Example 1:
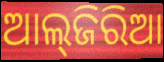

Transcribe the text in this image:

ଆଲ୍‌ଜିରିଆ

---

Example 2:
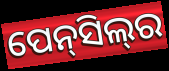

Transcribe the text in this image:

ପେନ୍‍ସିଲ୍‍ର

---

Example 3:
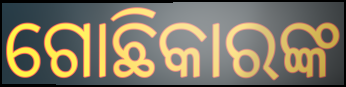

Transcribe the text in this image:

ଗୋଛିକାରଙ୍କ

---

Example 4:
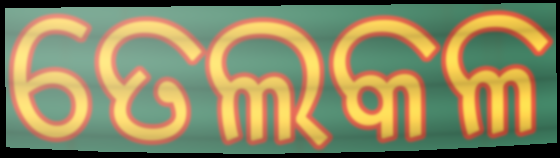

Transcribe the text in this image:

ତେଲକଳ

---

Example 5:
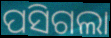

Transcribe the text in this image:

ପସିଗଲା